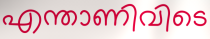
എന്താണിവിടെ